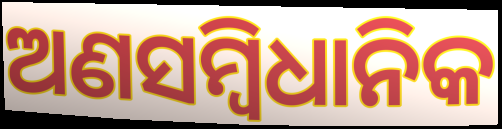
ଅଣସମ୍ବିଧାନିକ